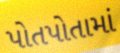
પોતપોતામાં